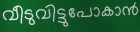
വീടുവിട്ടുപോകാൻ